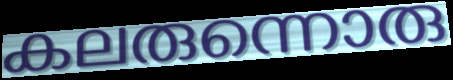
കലരുന്നൊരു